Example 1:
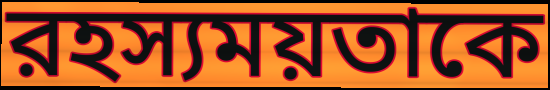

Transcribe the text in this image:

রহস্যময়তাকে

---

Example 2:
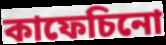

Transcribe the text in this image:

কাফেচিনো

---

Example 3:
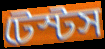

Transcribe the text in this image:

টেস্টস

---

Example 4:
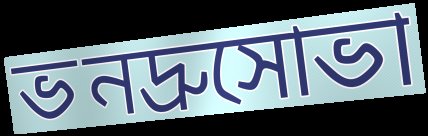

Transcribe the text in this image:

ভনদ্রুসোভা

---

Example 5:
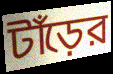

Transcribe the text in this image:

টাঁড়ের